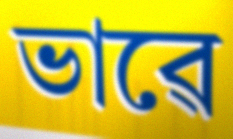
ভাৱে